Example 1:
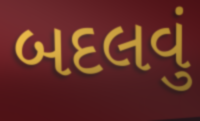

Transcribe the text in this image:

બદલવું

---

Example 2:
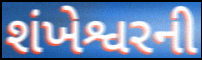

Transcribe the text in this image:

શંખેશ્વરની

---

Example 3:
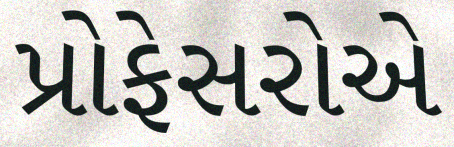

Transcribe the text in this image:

પ્રોફેસરોએ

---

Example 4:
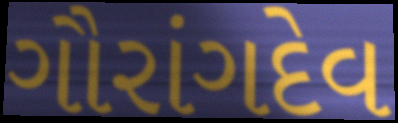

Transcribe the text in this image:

ગૌરાંગદેવ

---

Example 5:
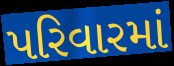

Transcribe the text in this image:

પરિવારમાં